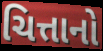
ચિત્તાનો